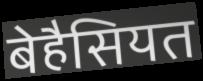
बेहैसियत